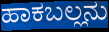
ಹಾಕಬಲ್ಲನು